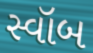
સ્વૉબ